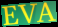
EVA